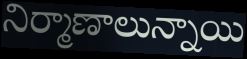
నిర్మాణాలున్నాయి